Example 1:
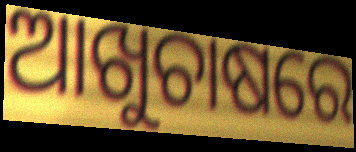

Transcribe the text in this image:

ଆଖୁଚାଷରେ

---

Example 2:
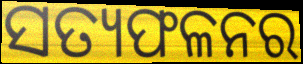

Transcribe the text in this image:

ସତ୍ୟଫଳନର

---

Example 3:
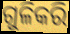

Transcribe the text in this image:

ଗୁଳିକରି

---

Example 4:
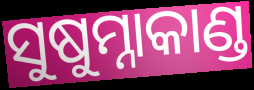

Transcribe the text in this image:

ସୁଷୁମ୍ନାକାଣ୍ଡ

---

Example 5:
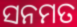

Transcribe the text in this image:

ସନମତ